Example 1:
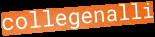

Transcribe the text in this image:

collegenalli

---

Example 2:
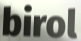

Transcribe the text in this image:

birol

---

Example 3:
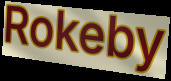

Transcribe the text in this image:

Rokeby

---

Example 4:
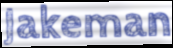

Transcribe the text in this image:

Jakeman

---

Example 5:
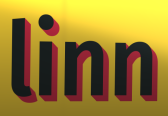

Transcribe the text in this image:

linn